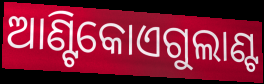
ଆଣ୍ଟିକୋଏଗୁଲାଣ୍ଟ